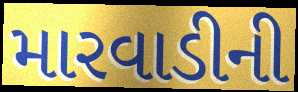
મારવાડીની